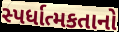
સ્પર્ધાત્મકતાનો